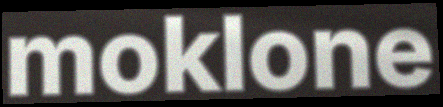
moklone